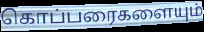
கொப்பரைகளையும்